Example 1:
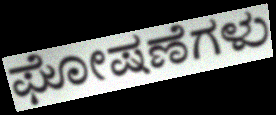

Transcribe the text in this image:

ಘೋಷಣೆಗಳು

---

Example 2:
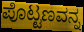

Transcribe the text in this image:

ಪೊಟ್ಟಣವನ್ನ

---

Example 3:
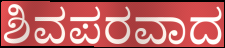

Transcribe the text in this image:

ಶಿವಪರವಾದ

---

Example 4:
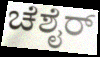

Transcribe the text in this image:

ಚೆಶೈರ್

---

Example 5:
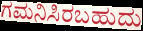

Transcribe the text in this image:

ಗಮನಿಸಿರಬಹುದು